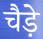
चैड़े